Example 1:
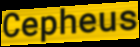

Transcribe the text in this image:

Cepheus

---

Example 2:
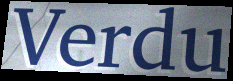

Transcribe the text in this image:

Verdu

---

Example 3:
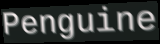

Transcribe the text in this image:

Penguine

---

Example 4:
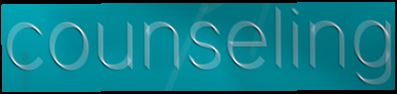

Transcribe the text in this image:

counseling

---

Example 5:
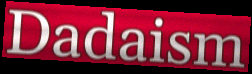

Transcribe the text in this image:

Dadaism